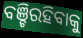
ବଞ୍ଚିରହିବାକୁ